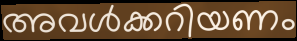
അവൾക്കറിയണം